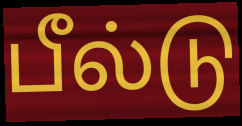
பீல்டு